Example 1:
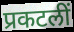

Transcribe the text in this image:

प्रकटलीं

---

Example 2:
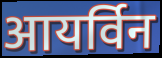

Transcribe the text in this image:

आयर्विन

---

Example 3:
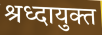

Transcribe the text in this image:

श्रध्दायुक्त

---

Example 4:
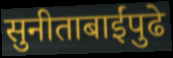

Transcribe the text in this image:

सुनीताबाईंपुढे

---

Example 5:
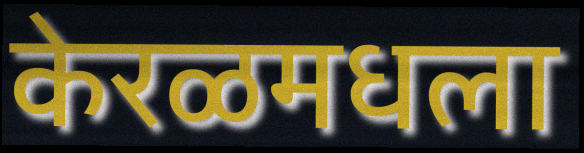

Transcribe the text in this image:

केरळमधला